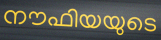
നൗഫിയയുടെ